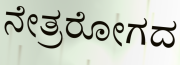
ನೇತ್ರರೋಗದ